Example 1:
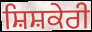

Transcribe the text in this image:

ਸ਼ਿਸ਼ਕੇਰੀ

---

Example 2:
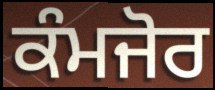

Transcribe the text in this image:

ਕੰਮਜੋਰ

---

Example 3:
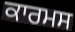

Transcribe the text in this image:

ਕਾਰਮਸ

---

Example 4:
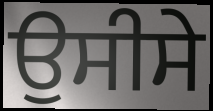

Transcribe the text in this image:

ਉਸੀਸੇ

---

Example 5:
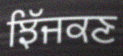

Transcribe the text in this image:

ਝਿੱਜਕਣ